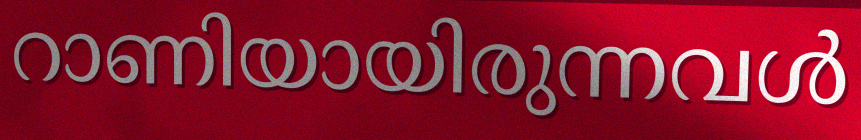
റാണിയായിരുന്നവൾ